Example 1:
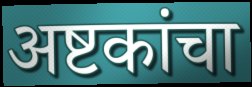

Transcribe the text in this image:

अष्टकांचा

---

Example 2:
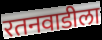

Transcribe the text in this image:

रतनवाडीला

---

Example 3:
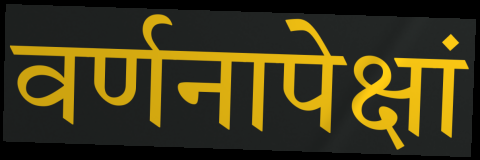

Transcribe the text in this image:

वर्णनापेक्षां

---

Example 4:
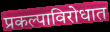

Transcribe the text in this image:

प्रकल्पाविरोधात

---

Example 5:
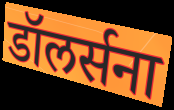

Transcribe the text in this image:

डॉलर्सना